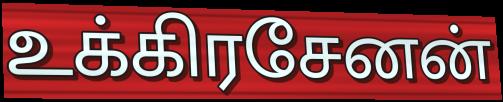
உக்கிரசேனன்